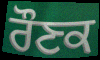
ਰੌਣਕ